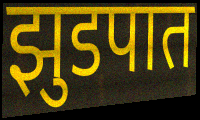
झुडपात